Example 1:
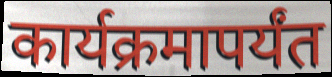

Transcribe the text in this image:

कार्यक्रमापर्यंत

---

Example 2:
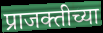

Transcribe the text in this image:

प्राजक्तीच्या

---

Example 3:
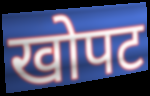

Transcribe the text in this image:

खोपट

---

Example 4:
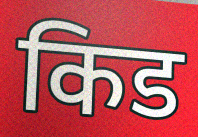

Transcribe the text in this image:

किड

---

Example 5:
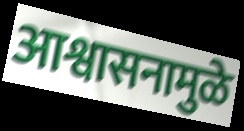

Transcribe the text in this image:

आश्वासनामुळे